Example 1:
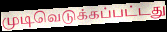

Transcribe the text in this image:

முடிவெடுக்கப்பட்டது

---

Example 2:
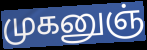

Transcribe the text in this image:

முகனுஞ்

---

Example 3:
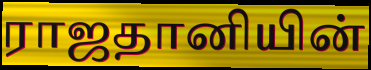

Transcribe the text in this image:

ராஜதானியின்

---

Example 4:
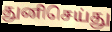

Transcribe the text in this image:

துனிசெய்து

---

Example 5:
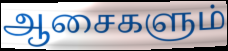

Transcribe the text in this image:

ஆசைகளும்